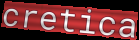
cretica